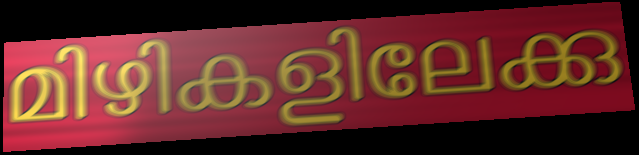
മിഴികളിലേക്കു